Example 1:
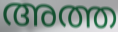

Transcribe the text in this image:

അത്ത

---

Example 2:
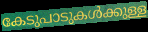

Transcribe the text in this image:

കേടുപാടുകൾക്കുള്ള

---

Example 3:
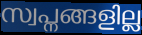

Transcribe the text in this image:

സ്വപ്നങ്ങളില്ല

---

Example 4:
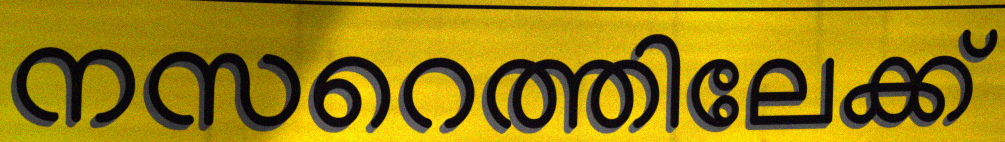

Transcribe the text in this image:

നസറെത്തിലേക്ക്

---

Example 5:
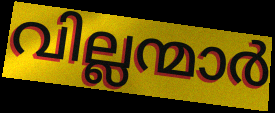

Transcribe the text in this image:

വില്ലന്മാർ